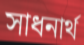
সাধনার্থ